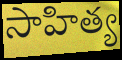
సాహిత్య